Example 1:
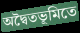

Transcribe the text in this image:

অদ্বৈতভূমিতে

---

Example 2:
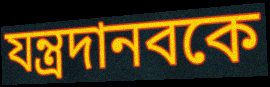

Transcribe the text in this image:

যন্ত্রদানবকে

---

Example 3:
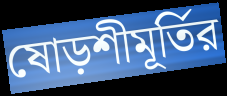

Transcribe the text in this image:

ষোড়শীমূর্তির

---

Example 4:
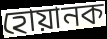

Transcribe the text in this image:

হোয়ানক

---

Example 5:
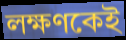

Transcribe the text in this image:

লক্ষণকেই